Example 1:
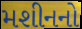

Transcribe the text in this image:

મશીનનો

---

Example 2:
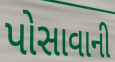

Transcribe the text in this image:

પોસાવાની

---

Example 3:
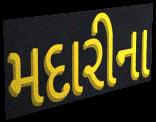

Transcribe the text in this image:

મદારીના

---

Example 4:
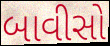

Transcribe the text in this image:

બાવીસો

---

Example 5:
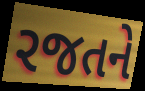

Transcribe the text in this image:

રજતને